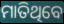
ମାତିଥିବେ